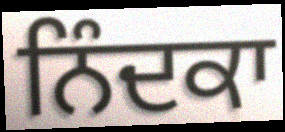
ਨਿੰਦਕਾ